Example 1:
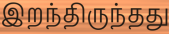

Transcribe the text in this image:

இறந்திருந்தது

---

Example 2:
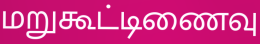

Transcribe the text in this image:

மறுகூட்டிணைவு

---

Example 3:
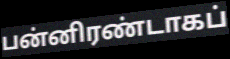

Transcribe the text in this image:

பன்னிரண்டாகப்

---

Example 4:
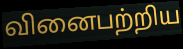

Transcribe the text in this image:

வினைபற்றிய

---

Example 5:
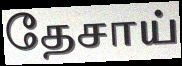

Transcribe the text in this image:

தேசாய்